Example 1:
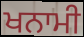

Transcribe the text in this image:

ਖਨਾਮੀ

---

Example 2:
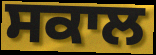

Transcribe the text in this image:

ਸਕਾਲ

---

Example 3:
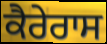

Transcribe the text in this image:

ਕੈਰੇਰਾਸ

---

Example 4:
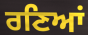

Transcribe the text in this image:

ਰਣਿਆਂ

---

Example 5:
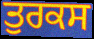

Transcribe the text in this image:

ਤੁਰਕਸ